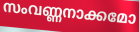
സംവണ്ണനാക്കമോ